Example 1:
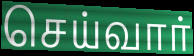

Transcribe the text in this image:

செய்வார்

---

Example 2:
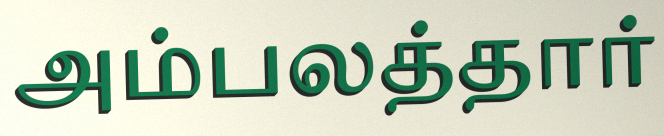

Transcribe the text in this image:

அம்பலத்தார்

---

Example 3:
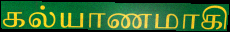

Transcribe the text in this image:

கல்யாணமாகி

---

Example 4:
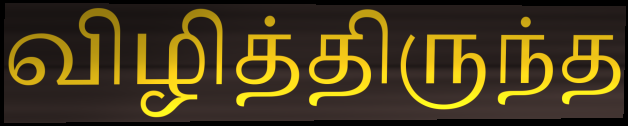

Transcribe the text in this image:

விழித்திருந்த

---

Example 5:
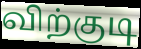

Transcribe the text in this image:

விற்குடி